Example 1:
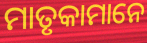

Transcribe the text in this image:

ମାତୃକାମାନେ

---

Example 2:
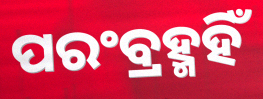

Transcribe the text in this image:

ପରଂବ୍ରହ୍ମହିଁ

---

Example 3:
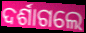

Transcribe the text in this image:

ଦର୍ଶାଗଲେ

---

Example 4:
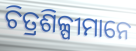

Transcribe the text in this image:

ଚିତ୍ରଶିଳ୍ପୀମାନେ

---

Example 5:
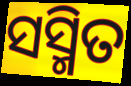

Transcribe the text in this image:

ସସ୍ମିତ